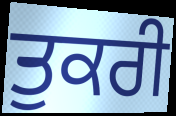
ਤੁਕਰੀ